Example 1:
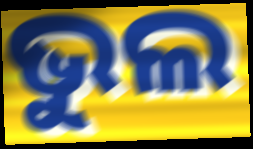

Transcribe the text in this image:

ଭୁଲ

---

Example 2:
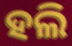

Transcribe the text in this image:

ହଲି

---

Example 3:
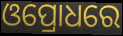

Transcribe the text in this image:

ଓପ୍ରୋଧରେ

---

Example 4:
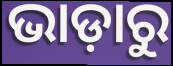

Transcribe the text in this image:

ଭାଡ଼ାରୁ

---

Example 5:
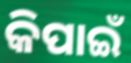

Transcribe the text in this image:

କିପାଇଁ